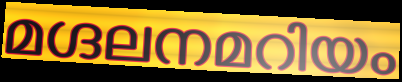
മഗ്ദലനമറിയം